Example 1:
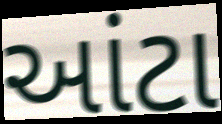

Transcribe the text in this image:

આંટા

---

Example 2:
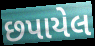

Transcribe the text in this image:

છપાયેલ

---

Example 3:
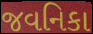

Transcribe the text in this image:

જવનિકા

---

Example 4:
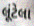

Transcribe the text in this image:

લૂંટેલા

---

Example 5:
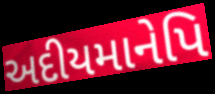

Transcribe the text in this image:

અદીયમાનેપિ